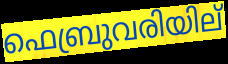
ഫെബ്രുവരിയില്